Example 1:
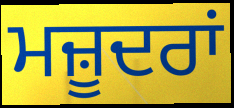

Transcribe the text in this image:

ਮਜ਼ੂਦਰਾਂ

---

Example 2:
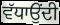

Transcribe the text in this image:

ਵੱਧਾਉਂਦੀ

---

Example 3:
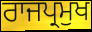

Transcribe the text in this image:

ਰਾਜਪ੍ਰਮੁਖ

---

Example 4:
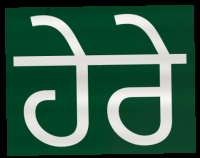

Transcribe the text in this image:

ਹੇਰੇ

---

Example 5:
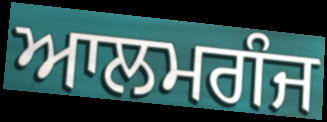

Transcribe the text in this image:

ਆਲਮਗੰਜ